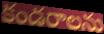
కండరాలను